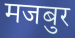
मजबुर